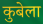
कुबेला